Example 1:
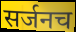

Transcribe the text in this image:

सर्जनच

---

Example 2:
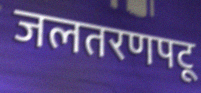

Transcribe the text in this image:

जलतरणपटू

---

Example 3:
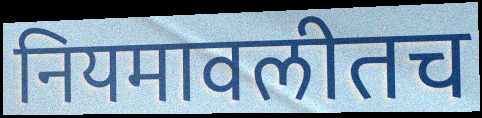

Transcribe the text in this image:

नियमावलीतच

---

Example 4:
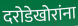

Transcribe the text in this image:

दरोडेखोरांना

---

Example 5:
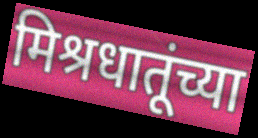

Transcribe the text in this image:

मिश्रधातूंच्या